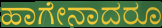
ಹಾಗೇನಾದರೂ